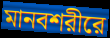
মানবশরীরে